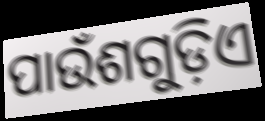
ପାଉଁଶଗୁଡ଼ିଏ